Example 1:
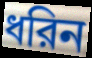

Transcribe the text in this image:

ধরিন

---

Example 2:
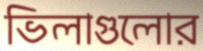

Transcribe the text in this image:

ভিলাগুলোর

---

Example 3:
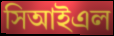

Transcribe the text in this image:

সিআইএল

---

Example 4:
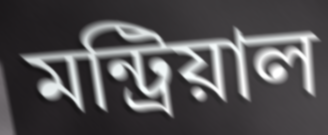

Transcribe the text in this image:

মন্ট্রিয়াল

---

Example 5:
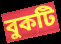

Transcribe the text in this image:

বুকটি